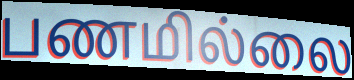
பணமில்லை